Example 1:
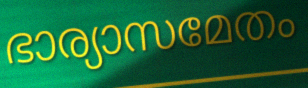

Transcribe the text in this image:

ഭാര്യാസമേതം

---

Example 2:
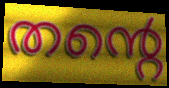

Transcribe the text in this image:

തന്റെ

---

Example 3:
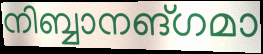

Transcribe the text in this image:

നിബ്ബാനങ്ഗമാ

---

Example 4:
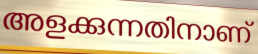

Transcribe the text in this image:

അളക്കുന്നതിനാണ്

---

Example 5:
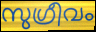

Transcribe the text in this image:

സുഗ്രീവം